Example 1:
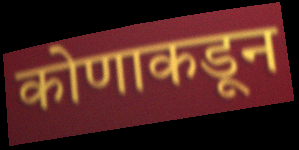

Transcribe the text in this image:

कोणाकडून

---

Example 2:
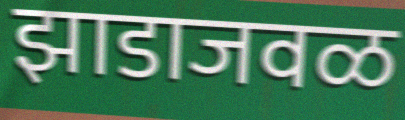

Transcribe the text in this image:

झाडाजवळ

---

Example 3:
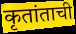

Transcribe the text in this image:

कृतांताची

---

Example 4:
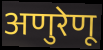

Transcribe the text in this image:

अणुरेणू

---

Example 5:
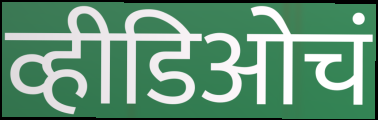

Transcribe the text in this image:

व्हीडिओचं